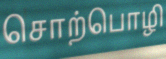
சொற்பொழி